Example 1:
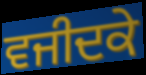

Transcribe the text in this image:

ਵਜੀਦਕੇ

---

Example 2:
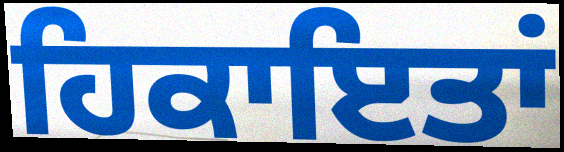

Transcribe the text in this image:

ਹਿਕਾਇਤਾਂ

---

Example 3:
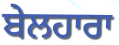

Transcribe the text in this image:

ਬੇਲਹਾਰਾ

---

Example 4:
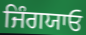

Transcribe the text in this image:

ਜਿੰਗਯਾਓ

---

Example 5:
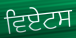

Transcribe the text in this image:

ਵਿਏਟਸ